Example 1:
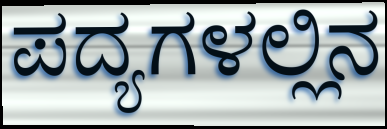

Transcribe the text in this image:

ಪದ್ಯಗಳಲ್ಲಿನ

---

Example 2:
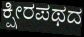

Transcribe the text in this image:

ಕ್ಷೀರಪಥದ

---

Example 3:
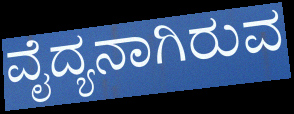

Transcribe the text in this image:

ವೈದ್ಯನಾಗಿರುವ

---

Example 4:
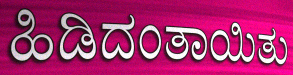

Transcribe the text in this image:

ಹಿಡಿದಂತಾಯಿತು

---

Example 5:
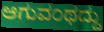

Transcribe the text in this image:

ಆಗುವಂಥದ್ದು